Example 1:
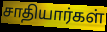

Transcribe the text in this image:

சாதியார்கள்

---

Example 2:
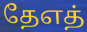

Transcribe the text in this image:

தேஎத்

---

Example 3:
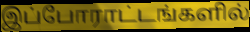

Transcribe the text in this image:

இப்போராட்டங்களில்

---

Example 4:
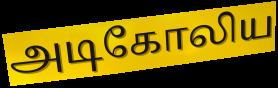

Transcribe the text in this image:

அடிகோலிய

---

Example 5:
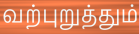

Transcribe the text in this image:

வற்புறுத்தும்